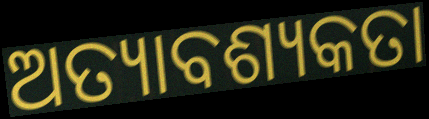
ଅତ୍ୟାବଶ୍ୟକତା